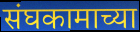
संघकामाच्या